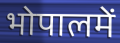
भोपालमें